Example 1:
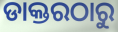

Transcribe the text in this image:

ଡାକ୍ତରଠାରୁ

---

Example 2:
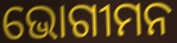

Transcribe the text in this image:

ଭୋଗୀମନ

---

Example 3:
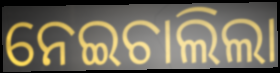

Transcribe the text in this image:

ନେଇଚାଲିଲା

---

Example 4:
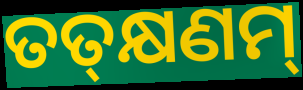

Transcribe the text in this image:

ତତ୍‌କ୍ଷଣମ୍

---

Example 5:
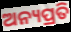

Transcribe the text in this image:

ଅନ୍ୟପ୍ରତି